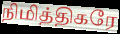
நிமித்திகரே